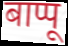
बाप्पू